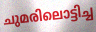
ചുമരിലൊട്ടിച്ച